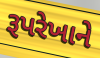
રૂપરેખાને